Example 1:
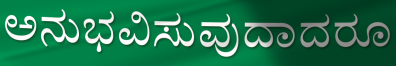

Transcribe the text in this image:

ಅನುಭವಿಸುವುದಾದರೂ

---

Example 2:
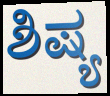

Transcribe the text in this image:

ಶಿಷ್ಯ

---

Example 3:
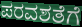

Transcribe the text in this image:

ಪರವಶತೆಗೆ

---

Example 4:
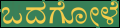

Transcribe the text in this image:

ಒದಗೋಳೆ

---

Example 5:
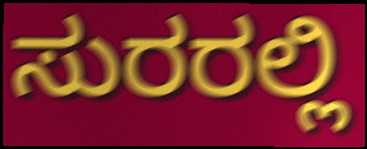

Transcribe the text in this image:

ಸುರರಲ್ಲಿ